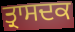
ਤ੍ਰਾਸਦਕ